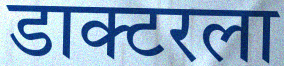
डाक्टरला